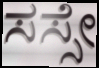
ಸಸ್ಸೇ